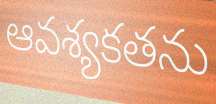
ఆవశ్యకతను